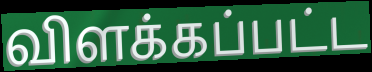
விளக்கப்பட்ட